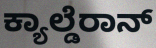
ಕ್ಯಾಲ್ಡೆರಾನ್